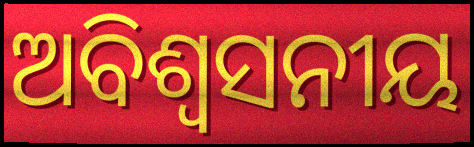
ଅବିଶ୍ବସନୀୟ